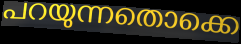
പറയുന്നതൊക്കെ